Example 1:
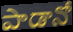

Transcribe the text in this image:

పాడానో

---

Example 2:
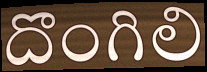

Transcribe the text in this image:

దొంగిలి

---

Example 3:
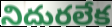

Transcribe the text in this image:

నిదురలేక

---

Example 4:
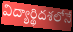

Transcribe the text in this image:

విద్యార్థిదశలోనే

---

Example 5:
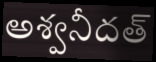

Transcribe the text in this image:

అశ్వనీదత్